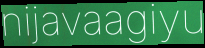
nijavaagiyu